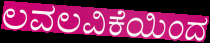
ಲವಲವಿಕೆಯಿಂದ